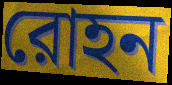
রোহন